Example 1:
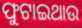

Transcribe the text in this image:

ଫୁଟାଇଥାଉ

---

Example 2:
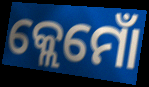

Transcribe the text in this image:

କ୍ଲେମୋଁ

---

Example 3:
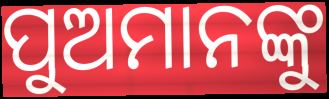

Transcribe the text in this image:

ପୁଅମାନଙ୍କୁ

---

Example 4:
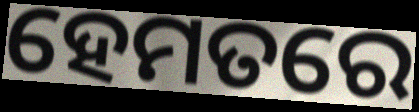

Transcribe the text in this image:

ହେମତରେ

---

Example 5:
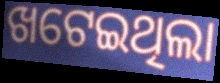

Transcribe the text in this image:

ଖଟେଇଥିଲା